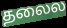
தலைல